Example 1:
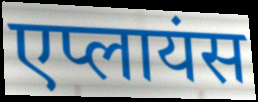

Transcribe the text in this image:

एप्लायंस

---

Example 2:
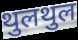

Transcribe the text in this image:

थुलथुल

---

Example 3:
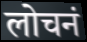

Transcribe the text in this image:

लोचनं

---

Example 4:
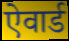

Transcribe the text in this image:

ऐवार्ड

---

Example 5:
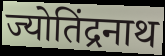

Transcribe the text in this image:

ज्योतिंद्रनाथ